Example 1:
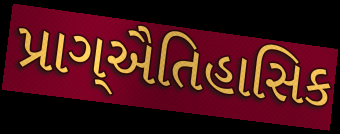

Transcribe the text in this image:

પ્રાગ્ઐતિહાસિક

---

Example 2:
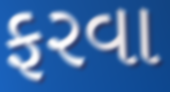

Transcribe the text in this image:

ફરવા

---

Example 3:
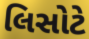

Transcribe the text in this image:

લિસોટે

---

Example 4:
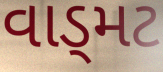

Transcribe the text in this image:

વાડ્મટ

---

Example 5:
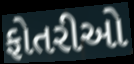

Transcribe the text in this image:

ફોતરીઓ